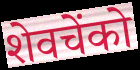
शेवचेंको